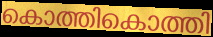
കൊത്തികൊത്തി